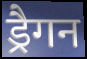
ड्रैगन